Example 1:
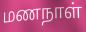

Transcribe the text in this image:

மணநாள்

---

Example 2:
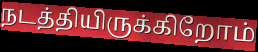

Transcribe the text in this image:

நடத்தியிருக்கிறோம்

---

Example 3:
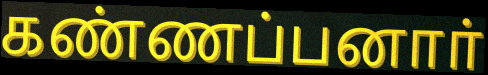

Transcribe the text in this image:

கண்ணப்பனார்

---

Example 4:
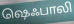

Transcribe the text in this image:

ஷெஃபாலி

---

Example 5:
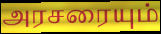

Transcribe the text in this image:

அரசரையும்